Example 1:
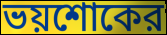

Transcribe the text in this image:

ভয়শোকের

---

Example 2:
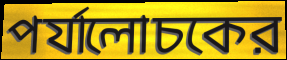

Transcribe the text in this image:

পর্যালোচকের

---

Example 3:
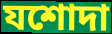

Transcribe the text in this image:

যশোদা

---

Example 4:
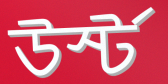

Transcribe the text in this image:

উর্স্ট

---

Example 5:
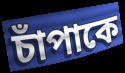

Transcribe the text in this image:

চাঁপাকে